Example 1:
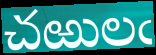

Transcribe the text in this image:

చఱులఁ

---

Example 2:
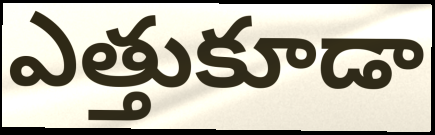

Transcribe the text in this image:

ఎత్తుకూడా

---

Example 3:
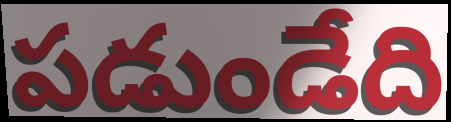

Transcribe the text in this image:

పడుండేది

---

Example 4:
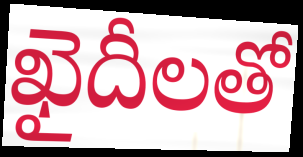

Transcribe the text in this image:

ఖైదీలతో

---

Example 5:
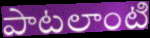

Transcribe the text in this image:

పాటలాంటి